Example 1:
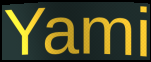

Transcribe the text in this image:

Yami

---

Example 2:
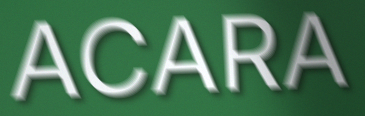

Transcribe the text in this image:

ACARA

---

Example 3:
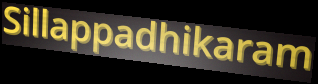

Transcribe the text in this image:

Sillappadhikaram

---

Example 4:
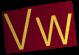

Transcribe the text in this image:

Vw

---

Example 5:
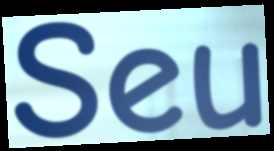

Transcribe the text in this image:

Seu